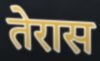
तेरास